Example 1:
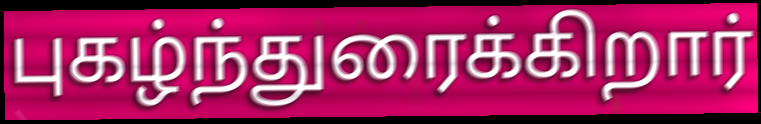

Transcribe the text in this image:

புகழ்ந்துரைக்கிறார்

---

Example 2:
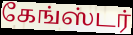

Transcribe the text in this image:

கேங்ஸ்டர்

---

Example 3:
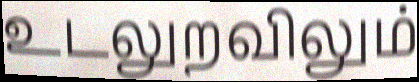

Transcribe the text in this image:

உடலுறவிலும்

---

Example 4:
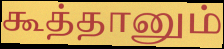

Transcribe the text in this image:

கூத்தானும்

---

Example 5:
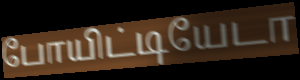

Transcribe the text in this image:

போயிட்டியேடா